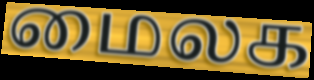
மைலக